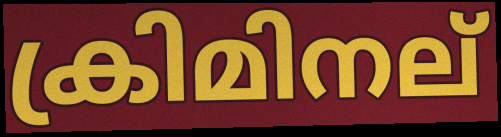
ക്രിമിനല്